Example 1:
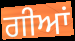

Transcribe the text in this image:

ਗੀਆਂ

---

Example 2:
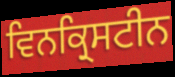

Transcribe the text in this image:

ਵਿਨਕ੍ਰਿਸਟੀਨ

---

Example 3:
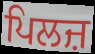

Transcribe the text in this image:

ਪਿਲਜ਼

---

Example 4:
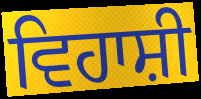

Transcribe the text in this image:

ਵਿਹਾਸ਼ੀ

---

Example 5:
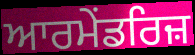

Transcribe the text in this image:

ਆਰਮੇਂਡਰਿਜ਼